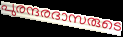
പുരന്ദരദാസരുടെ